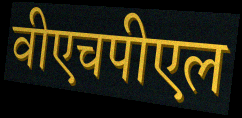
वीएचपीएल